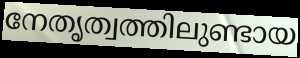
നേതൃത്വത്തിലുണ്ടായ